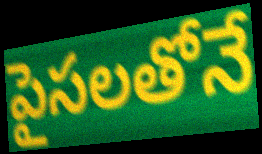
పైసలతోనే